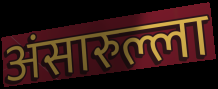
अंसारुल्ला